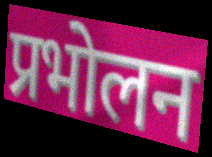
प्रभोलन